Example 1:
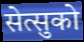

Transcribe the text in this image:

सेत्सुको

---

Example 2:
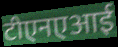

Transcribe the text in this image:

टीएनएआई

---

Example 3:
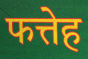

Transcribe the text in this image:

फत्तेह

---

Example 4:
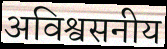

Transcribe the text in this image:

अविश्वसनीय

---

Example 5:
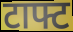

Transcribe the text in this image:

टाफ्ट